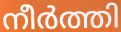
നീർത്തി